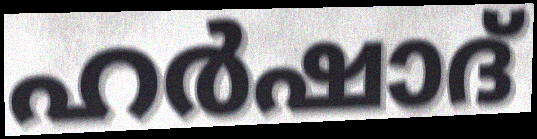
ഹർഷാദ്